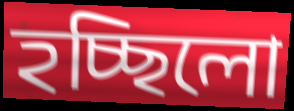
হচ্ছিলো